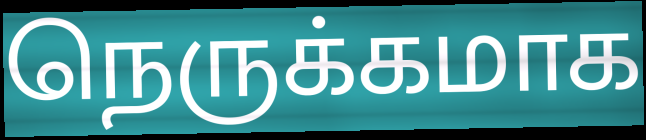
நெருக்கமாக